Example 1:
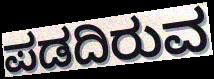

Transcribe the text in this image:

ಪಡದಿರುವ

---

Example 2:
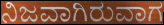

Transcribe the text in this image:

ನಿಜವಾಗಿರುವಾಗ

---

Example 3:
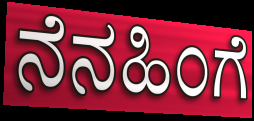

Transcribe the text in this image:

ನೆನಹಿಂಗೆ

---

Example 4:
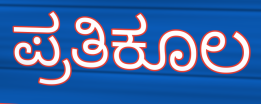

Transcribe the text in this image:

ಪ್ರತಿಕೂಲ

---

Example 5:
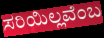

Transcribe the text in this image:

ಸರಿಯಿಲ್ಲವೆಂಬ